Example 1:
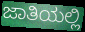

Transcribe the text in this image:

ಜಾತಿಯಲ್ಲಿ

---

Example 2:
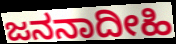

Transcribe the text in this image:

ಜನನಾದೀಹಿ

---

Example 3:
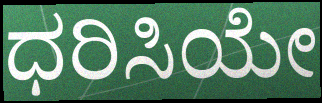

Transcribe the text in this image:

ಧರಿಸಿಯೇ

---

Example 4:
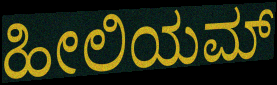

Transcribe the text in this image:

ಹೀಲಿಯಮ್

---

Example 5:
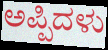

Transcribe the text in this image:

ಅಪ್ಪಿದಳು